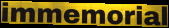
immemorial